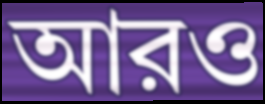
আরও